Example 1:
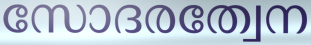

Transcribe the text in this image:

സോദരത്വേന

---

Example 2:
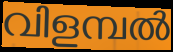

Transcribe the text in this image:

വിളമ്പൽ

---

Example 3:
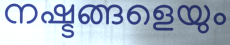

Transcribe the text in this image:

നഷ്ടങ്ങളെയും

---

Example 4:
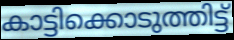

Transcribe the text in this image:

കാട്ടിക്കൊടുത്തിട്ട്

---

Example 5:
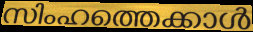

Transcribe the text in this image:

സിംഹത്തെക്കാൾ